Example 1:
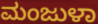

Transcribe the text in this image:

ಮಂಜುಳಾ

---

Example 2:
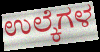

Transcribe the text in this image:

ಉಲ್ಕೆಗಳ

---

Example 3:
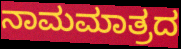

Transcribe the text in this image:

ನಾಮಮಾತ್ರದ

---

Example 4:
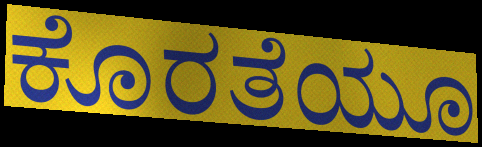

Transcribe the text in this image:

ಕೊರತೆಯೂ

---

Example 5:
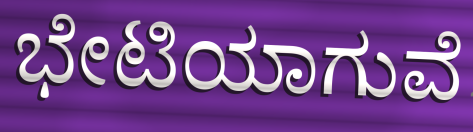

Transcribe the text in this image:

ಭೇಟಿಯಾಗುವೆ